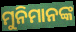
ମୁନିମାନଙ୍କ